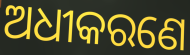
ଅଧୀକରଣେ